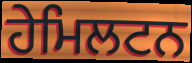
ਹੇਮਿਲਟਨ